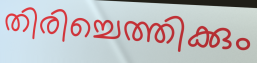
തിരിച്ചെത്തിക്കും